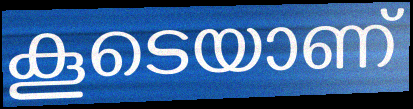
കൂടെയാണ്